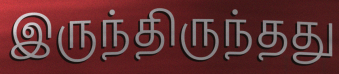
இருந்திருந்தது